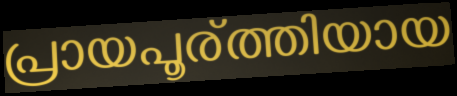
പ്രായപൂര്ത്തിയായ